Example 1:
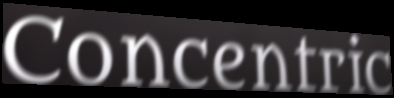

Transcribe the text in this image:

Concentric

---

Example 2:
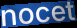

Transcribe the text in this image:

nocet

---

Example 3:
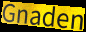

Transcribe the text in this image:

Gnaden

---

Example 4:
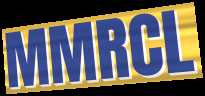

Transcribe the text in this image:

MMRCL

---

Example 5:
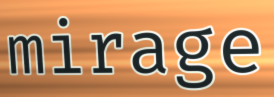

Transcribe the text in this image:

mirage